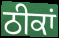
ਠੀਕਾਂ